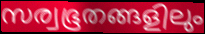
സര്വഭൂതങ്ങളിലും